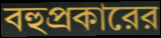
বহুপ্রকারের